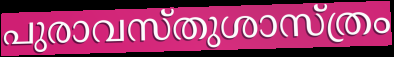
പുരാവസ്തുശാസ്ത്രം